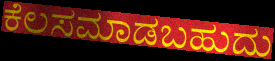
ಕೆಲಸಮಾಡಬಹುದು